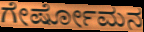
ಗೇರ್ಷೋಮನ